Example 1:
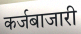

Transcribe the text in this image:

कर्जबाजारी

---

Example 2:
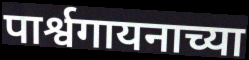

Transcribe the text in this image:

पार्श्वगायनाच्या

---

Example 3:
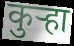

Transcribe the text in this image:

कुऱ्हा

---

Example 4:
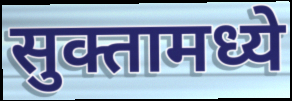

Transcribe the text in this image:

सुक्तामध्ये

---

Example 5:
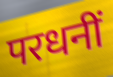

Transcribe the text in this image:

परधनीं